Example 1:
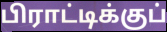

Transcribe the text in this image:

பிராட்டிக்குப்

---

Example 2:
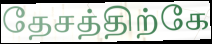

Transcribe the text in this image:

தேசத்திற்கே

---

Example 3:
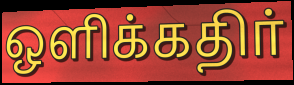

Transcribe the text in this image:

ஒளிக்கதிர்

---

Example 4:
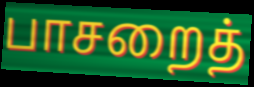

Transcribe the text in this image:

பாசறைத்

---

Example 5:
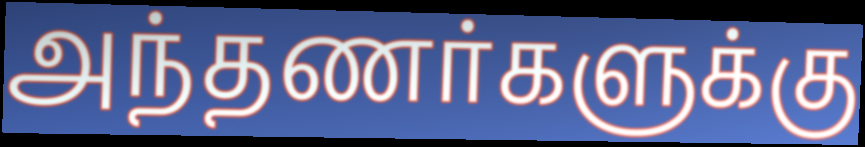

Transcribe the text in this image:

அந்தணர்களுக்கு